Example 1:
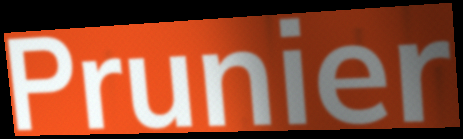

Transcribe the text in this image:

Prunier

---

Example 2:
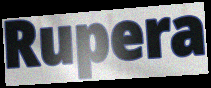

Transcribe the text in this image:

Rupera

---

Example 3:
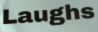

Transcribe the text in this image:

Laughs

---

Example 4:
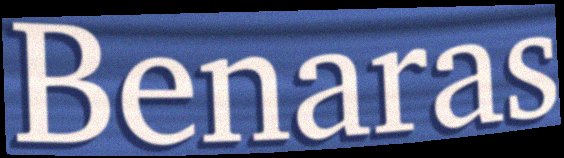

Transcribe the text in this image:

Benaras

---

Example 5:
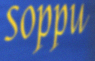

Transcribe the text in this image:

soppu